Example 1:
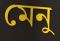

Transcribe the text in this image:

মেনু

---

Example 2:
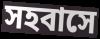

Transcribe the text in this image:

সহবাসে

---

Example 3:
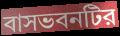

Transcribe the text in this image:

বাসভবনটির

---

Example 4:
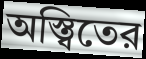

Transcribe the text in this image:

অস্ত্বিতের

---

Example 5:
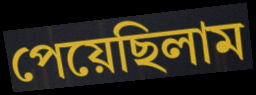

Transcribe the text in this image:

পেয়েছিলাম